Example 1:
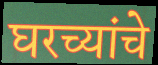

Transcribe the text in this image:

घरच्यांचे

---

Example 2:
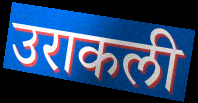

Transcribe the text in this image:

उराकली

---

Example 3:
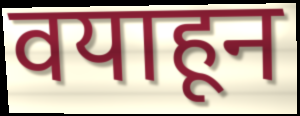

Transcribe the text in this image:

वयाहून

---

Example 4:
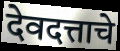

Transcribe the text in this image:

देवदत्ताचे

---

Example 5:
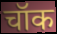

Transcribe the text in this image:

चॉक